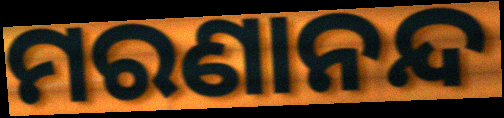
ମରଣାନନ୍ଦ